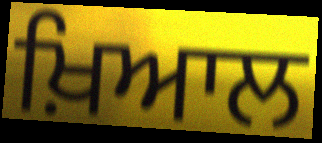
ਖ਼ਿਆਲ